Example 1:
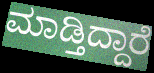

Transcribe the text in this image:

ಮಾಡ್ತಿದ್ದಾರೆ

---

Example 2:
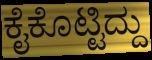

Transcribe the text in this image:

ಕೈಕೊಟ್ಟಿದ್ದು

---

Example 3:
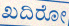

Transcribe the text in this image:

ಖದಿರೋ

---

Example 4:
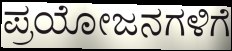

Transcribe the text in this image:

ಪ್ರಯೋಜನಗಳಿಗೆ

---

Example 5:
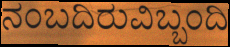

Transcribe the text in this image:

ನಂಬದಿರುವಿಬ್ಬಂದಿ